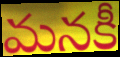
మనకీ